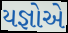
યજ્ઞોએ